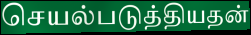
செயல்படுத்தியதன்